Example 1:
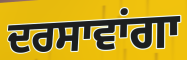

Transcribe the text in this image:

ਦਰਸਾਵਾਂਗਾ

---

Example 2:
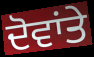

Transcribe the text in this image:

ਦੋਵਾਂਤੇ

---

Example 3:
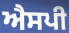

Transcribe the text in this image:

ਐਸਪੀ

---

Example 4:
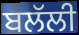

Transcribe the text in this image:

ਬਲੱਲੀ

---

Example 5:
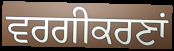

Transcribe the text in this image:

ਵਰਗੀਕਰਣਾਂ